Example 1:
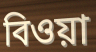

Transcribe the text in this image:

বিওয়া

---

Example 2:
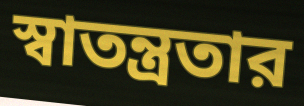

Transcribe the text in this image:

স্বাতন্ত্রতার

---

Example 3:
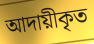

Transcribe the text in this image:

আদায়ীকৃত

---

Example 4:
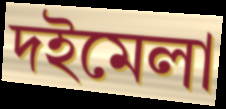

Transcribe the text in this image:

দইমেলা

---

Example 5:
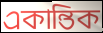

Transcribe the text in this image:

একান্তিক